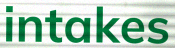
intakes